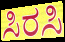
ಸಿರಸಿ